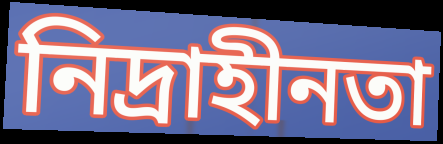
নিদ্ৰাহীনতা